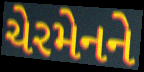
ચેરમેનને